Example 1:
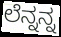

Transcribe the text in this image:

ಲೆನ್ನನ್ನ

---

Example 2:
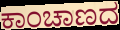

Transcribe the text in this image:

ಕಾಂಚಾಣದ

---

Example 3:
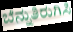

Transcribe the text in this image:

ಬೆನ್ನುತಿರುಗಿಸಿ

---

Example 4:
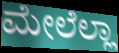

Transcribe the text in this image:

ಮೇಲೆಲ್ಲಾ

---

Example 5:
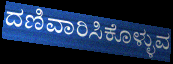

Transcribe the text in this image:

ದಣಿವಾರಿಸಿಕೊಳ್ಳುವ